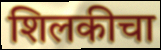
शिलकीचा